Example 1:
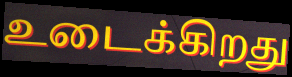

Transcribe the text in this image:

உடைக்கிறது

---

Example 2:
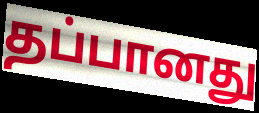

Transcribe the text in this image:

தப்பானது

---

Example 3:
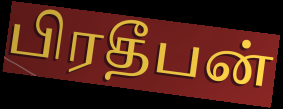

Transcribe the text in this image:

பிரதீபன்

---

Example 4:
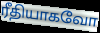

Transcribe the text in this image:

ரீதியாகவோ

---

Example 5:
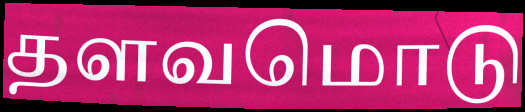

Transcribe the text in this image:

தளவமொடு